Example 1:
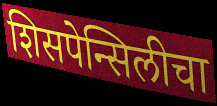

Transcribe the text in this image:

शिसपेन्सिलीचा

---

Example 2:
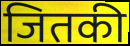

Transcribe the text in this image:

जितकी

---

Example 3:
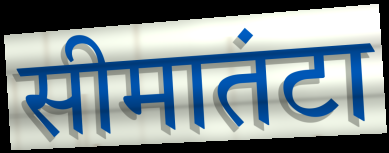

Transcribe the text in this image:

सीमातंटा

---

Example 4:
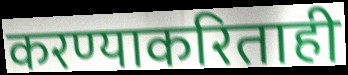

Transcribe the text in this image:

करण्याकरिताही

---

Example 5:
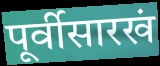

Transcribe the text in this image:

पूर्वीसारखं